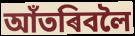
আঁতৰিবলৈ